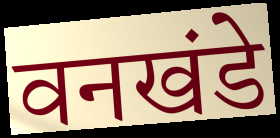
वनखंडे